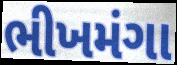
ભીખમંગા